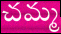
చమ్మ